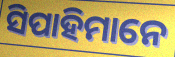
ସିପାହିମାନେ